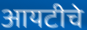
आयटीचे